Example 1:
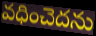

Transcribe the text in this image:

వధించెదను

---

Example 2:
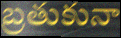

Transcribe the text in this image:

బ్రతుకునా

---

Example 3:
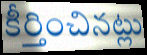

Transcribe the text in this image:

కీర్తించినట్లు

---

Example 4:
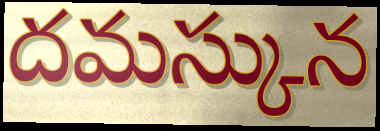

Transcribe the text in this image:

దమస్కున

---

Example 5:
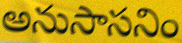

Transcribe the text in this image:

అనుసాసనిం